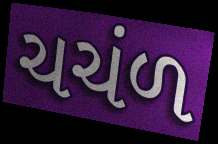
ચચંળ